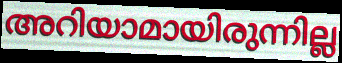
അറിയാമായിരുന്നില്ല